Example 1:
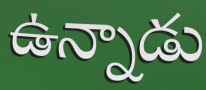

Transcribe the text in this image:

ఉన్నాడు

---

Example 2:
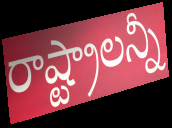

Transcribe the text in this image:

రాష్ట్రాలన్నీ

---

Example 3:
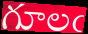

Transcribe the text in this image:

గూలఁ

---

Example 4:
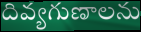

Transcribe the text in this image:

దివ్యగుణాలను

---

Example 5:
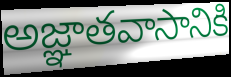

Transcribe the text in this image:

అజ్ఞాతవాసానికి